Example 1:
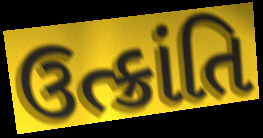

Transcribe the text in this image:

ઉત્ક્રાંતિ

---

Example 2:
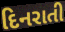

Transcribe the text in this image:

દિનરાતી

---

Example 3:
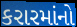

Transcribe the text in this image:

કરારમાંનો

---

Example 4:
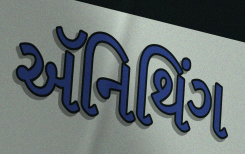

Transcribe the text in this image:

ઍનિથિંગ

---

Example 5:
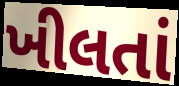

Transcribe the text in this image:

ખીલતાં